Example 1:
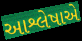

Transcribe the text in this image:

આશ્લેષાએ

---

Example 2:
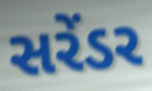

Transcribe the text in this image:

સરેંડર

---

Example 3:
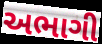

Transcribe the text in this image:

અભાગી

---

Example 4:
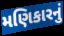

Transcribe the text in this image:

મણિકારનું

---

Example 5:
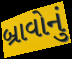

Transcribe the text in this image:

બ્રાવોનું